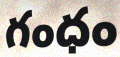
గంధం